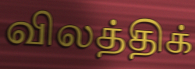
விலத்திக்